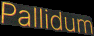
Pallidum